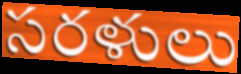
సరళులు